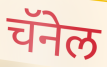
चॅनेल